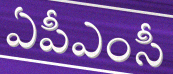
ఏపీఎంసీ